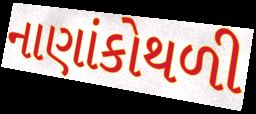
નાણાંકોથળી